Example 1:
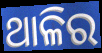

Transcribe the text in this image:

ଥାଳିର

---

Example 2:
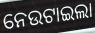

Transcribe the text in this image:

ନେଉଟାଇଲା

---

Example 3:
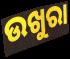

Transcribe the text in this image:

ଉଖୁରା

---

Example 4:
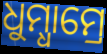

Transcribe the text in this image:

ଧୁମ୍ଧାମ୍ରେ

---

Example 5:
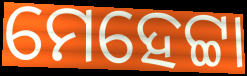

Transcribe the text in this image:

ମେହେଟ୍ଟା